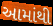
આમાંથી